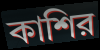
কাশির